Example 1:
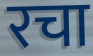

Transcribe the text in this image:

रचा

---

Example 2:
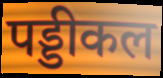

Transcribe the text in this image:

पड्डीकल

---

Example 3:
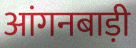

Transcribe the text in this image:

आंगनबाड़ी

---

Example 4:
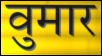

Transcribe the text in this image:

वुमार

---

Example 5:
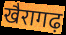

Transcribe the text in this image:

खैरागढ़